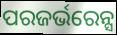
ପରଜର୍ଭରେନ୍ସ